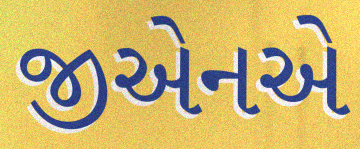
જીએનએ